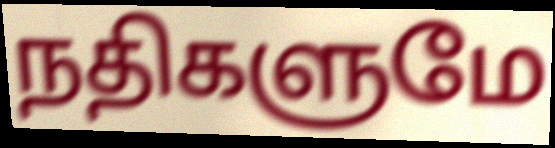
நதிகளுமே